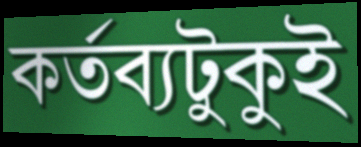
কর্তব্যটুকুই